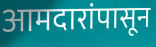
आमदारांपासून